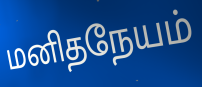
மனிதநேயம்